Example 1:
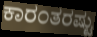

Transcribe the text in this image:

ಕಾರಂತರಷ್ಟು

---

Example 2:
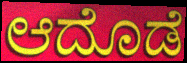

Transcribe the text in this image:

ಆದೊಡೆ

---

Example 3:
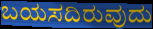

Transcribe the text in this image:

ಬಯಸದಿರುವುದು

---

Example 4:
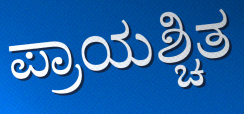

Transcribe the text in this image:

ಪ್ರಾಯಶ್ಚಿತ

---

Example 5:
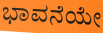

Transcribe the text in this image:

ಭಾವನೆಯೇ